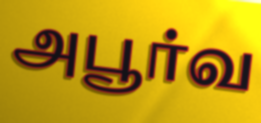
அபூர்வ